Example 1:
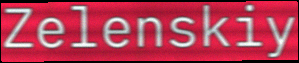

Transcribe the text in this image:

Zelenskiy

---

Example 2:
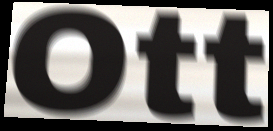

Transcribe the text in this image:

Ott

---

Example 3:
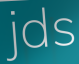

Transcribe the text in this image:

jds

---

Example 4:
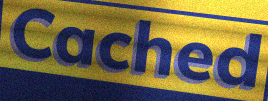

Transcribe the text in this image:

Cached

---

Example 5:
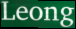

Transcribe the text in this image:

Leong